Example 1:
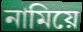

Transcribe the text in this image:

নামিয়ে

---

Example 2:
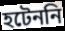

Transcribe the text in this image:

হটেননি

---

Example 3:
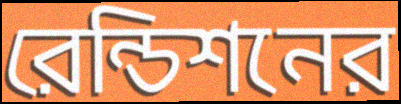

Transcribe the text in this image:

রেন্ডিশনের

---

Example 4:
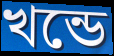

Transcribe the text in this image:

খন্ডে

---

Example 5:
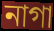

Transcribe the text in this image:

নাগা